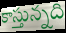
కాస్తున్నది